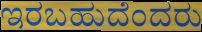
ಇರಬಹುದೆಂದರು